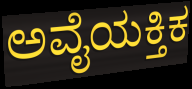
ಅವೈಯಕ್ತಿಕ